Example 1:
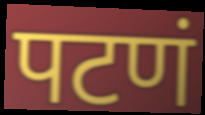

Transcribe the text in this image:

पटणं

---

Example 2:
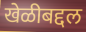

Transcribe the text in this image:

खेळीबद्दल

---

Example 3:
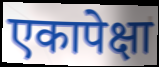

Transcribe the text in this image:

एकापेक्षा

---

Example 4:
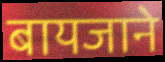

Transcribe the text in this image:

बायजाने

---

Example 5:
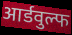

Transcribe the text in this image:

आर्डवुल्फ